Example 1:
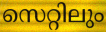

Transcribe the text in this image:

സെറ്റിലും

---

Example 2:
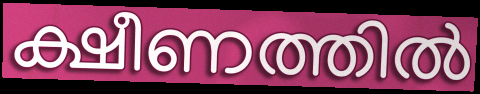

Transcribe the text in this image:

ക്ഷീണത്തിൽ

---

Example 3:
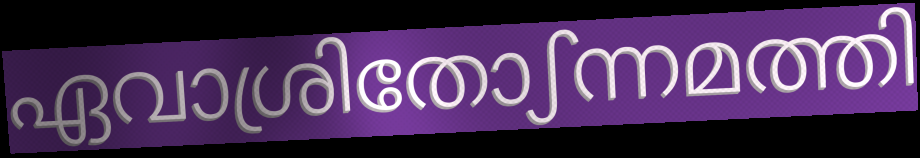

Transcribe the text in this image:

ഏവാശ്രിതോഽന്നമത്തി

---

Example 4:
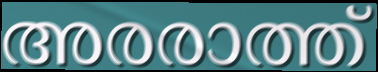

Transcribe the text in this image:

അരരാത്ത്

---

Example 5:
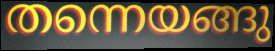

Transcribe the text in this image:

തന്നെയങ്ങു